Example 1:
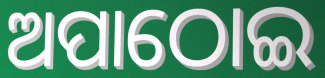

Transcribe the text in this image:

ଅପାଠୋଇ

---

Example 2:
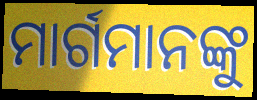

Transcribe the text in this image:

ମାର୍ଗମାନଙ୍କୁ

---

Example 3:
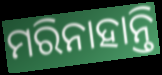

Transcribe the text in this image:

ମରିନାହାନ୍ତି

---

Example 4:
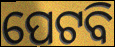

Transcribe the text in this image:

ପେଟବି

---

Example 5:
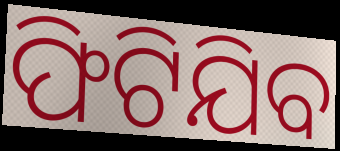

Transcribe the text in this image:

ଫିଟିଯିବ